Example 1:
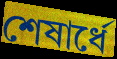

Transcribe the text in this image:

শেষার্ধে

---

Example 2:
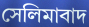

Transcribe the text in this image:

সেলিমাবাদ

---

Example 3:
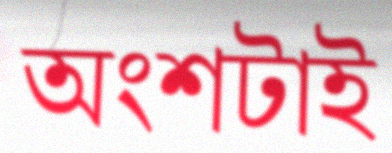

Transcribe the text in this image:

অংশটাই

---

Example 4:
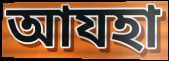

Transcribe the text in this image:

আযহা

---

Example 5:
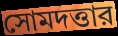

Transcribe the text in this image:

সোমদত্তার